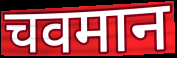
चवमान